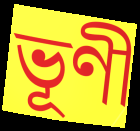
ভূণী